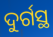
ଦୁର୍ଗସ୍ଥ